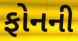
ફોનની